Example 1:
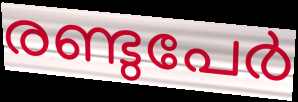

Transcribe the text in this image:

രണ്ടുപേർ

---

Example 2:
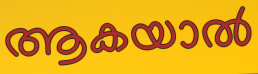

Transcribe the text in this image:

ആകയാൽ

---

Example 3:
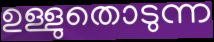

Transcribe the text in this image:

ഉള്ളുതൊടുന്ന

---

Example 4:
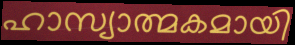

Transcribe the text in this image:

ഹാസ്യാത്മകമായി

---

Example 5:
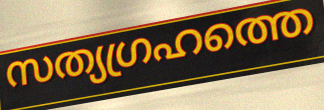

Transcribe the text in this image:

സത്യഗ്രഹത്തെ